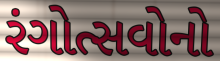
રંગોત્સવોનો